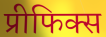
प्रीफिक्स